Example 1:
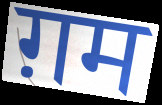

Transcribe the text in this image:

ग़म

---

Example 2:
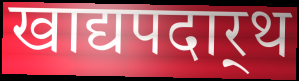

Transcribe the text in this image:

खाद्यपदार्थ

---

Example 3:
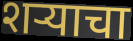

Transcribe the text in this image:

शर्‍याचा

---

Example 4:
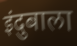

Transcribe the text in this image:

इंदुबाला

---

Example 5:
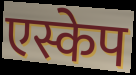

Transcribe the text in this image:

एस्केप